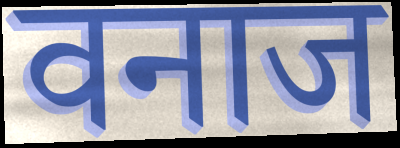
वनाज